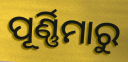
ପୂର୍ଣ୍ଣିମାରୁ